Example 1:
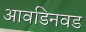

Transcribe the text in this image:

आवडिनवड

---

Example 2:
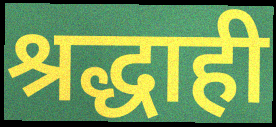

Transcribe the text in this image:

श्रद्धाही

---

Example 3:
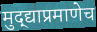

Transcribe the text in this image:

मुद्द्याप्रमाणेच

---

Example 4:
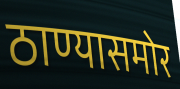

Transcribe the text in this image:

ठाण्यासमोर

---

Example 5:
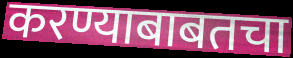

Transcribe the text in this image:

करण्याबाबतचा